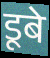
डूबे